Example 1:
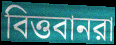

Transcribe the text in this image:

বিত্তবানরা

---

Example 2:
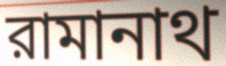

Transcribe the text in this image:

রামানাথ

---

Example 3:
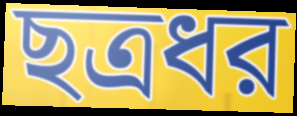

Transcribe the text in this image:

ছত্রধর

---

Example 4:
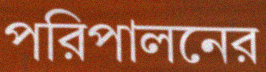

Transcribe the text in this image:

পরিপালনের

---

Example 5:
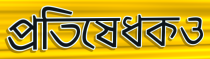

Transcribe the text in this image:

প্রতিষেধকও